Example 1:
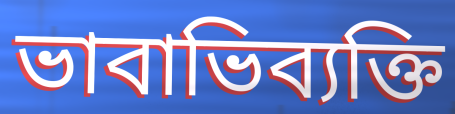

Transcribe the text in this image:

ভাবাভিব্যক্তি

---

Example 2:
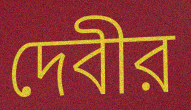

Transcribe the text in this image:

দেবীর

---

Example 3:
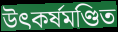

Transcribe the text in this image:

উৎকর্ষমণ্ডিত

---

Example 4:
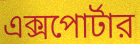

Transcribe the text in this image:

এক্সপোর্টার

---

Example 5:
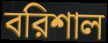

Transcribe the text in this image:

বরিশাল